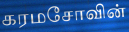
கரமசோவின்